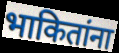
भाकितांना